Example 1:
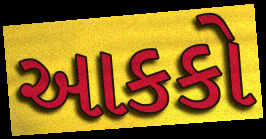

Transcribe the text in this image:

આકકો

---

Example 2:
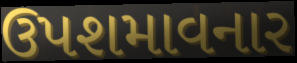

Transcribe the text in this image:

ઉપશમાવનાર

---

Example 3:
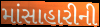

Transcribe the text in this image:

માંસાહારીની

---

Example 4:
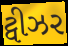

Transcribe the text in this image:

ટ્વીઝર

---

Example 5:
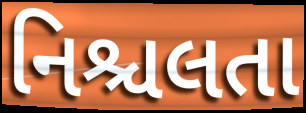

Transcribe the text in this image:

નિશ્ચલતા